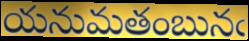
యనుమతంబునఁ